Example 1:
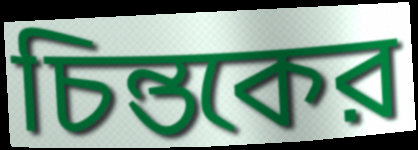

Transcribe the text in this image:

চিন্তকের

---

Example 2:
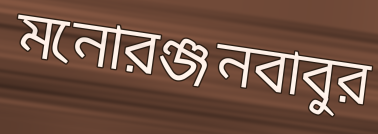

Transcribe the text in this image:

মনোরঞ্জনবাবুর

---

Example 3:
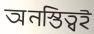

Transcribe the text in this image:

অনস্তিত্বই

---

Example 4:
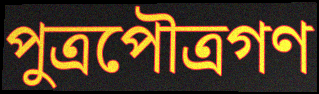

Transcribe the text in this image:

পুত্রপৌত্রগণ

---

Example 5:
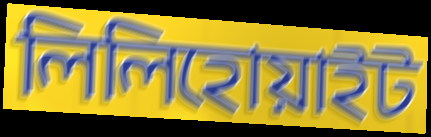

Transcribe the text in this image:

লিলিহোয়াইট